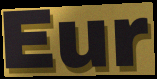
Eur